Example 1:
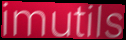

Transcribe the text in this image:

imutils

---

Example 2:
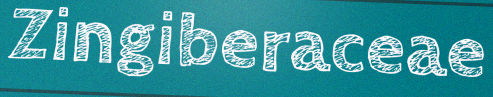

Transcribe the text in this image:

Zingiberaceae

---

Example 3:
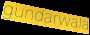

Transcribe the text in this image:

gundarwala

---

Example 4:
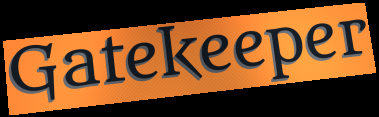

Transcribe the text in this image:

Gatekeeper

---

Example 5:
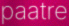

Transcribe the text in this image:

paatre